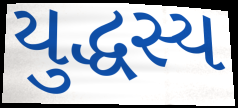
યુદ્ધસ્ય